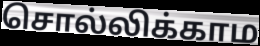
சொல்லிக்காம